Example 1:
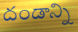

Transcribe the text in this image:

దండాన్ని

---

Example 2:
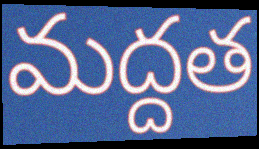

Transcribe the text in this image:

మద్దత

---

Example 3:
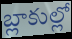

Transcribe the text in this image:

బ్లాకుల్లో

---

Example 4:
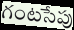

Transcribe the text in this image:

గంటసేపు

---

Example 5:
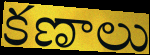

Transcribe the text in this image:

కణాలు